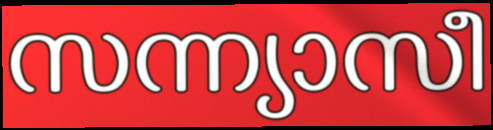
സന്ന്യാസീ